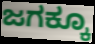
ಜಗಕ್ಕೂ